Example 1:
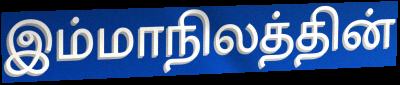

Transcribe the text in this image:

இம்மாநிலத்தின்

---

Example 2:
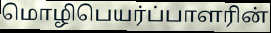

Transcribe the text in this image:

மொழிபெயர்ப்பாளரின்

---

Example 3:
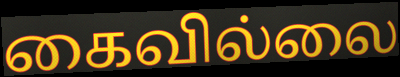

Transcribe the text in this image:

கைவில்லை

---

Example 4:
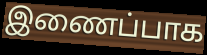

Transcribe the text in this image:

இணைப்பாக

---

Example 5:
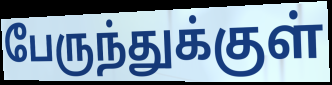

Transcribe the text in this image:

பேருந்துக்குள்